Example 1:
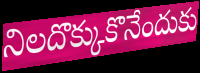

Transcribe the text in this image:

నిలదొక్కుకొనేందుకు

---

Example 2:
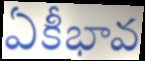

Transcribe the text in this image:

ఏకీభావ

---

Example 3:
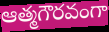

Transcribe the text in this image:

ఆత్మగౌరవంగా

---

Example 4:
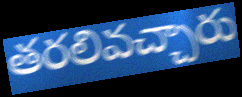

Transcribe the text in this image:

తరలివచ్చారు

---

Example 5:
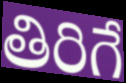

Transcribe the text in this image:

తిరిగే